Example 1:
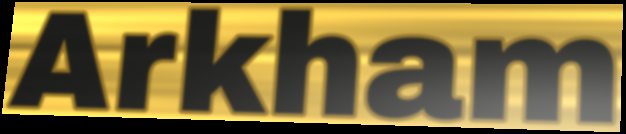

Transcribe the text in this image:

Arkham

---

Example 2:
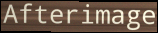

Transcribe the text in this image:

Afterimage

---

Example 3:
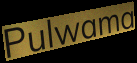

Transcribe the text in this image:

Pulwama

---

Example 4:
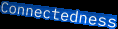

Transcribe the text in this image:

Connectedness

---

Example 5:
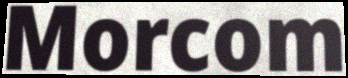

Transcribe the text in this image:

Morcom